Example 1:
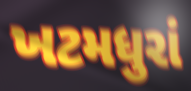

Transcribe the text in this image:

ખટમધુરાં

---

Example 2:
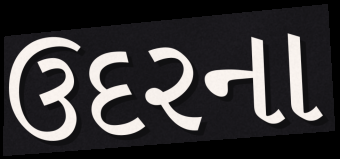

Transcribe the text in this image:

ઉદરના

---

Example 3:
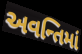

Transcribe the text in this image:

અવન્તિમાં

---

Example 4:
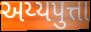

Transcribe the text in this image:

અય્યપુત્તા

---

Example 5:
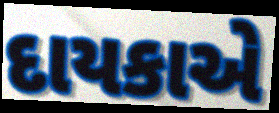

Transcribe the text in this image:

દાયકાએ